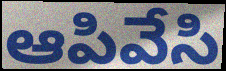
ఆపివేసి